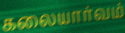
கலையார்வம்